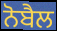
ਨੋਬੈਲ